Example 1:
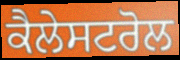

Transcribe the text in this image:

ਕੈਲੇਸਟਰੋਲ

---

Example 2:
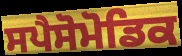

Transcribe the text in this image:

ਸਪੈਸੋਮੋਡਿਕ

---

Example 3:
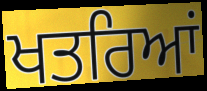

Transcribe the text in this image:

ਖਤਰਿਆਂ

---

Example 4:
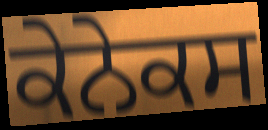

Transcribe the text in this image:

ਕੇਨੇਕਸ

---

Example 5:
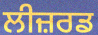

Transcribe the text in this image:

ਲੀਜ਼ਰਡ